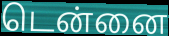
டென்னை